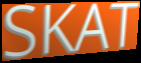
SKAT